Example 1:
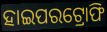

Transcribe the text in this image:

ହାଇପରଟ୍ରୋଫି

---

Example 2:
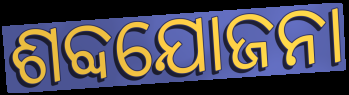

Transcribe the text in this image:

ଶବ୍ଦଯୋଜନା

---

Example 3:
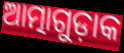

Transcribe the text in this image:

ଆତ୍ମାଗୁଡ଼ାକ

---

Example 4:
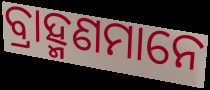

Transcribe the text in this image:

ବ୍ରାହ୍ମଣମାନେ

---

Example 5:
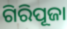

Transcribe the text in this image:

ଗିରିପୂଜା